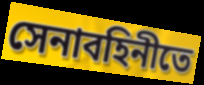
সেনাবহিনীতে